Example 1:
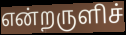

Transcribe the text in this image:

என்றருளிச்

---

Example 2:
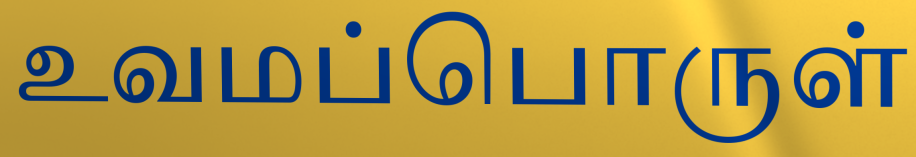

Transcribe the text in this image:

உவமப்பொருள்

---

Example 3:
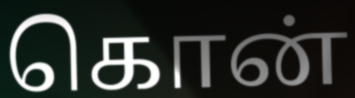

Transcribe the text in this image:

கொன்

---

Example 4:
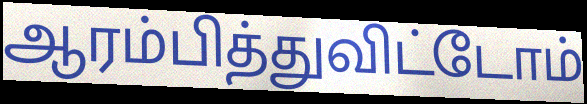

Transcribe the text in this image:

ஆரம்பித்துவிட்டோம்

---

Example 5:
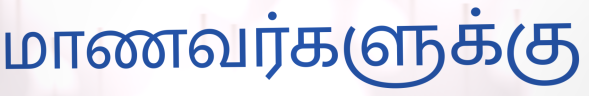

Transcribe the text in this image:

மாணவர்களுக்கு